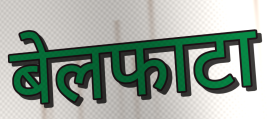
बेलफाटा